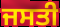
ਜਸਤੀ